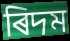
ৰিদম